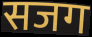
सजग